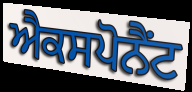
ਐਕਸਪੋਨੈਂਟ